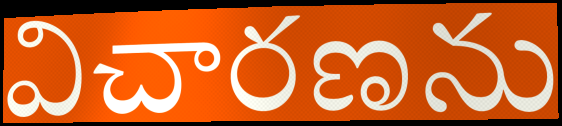
విచారణను